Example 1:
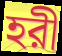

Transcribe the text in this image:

হরী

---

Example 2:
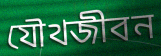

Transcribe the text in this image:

যৌথজীবন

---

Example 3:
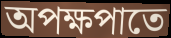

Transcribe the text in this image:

অপক্ষপাতে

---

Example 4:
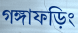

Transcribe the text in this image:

গঙ্গাফড়িং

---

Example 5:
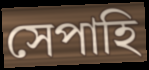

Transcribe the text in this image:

সেপাহি